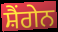
ਸ਼ੈਂਗੇਨ